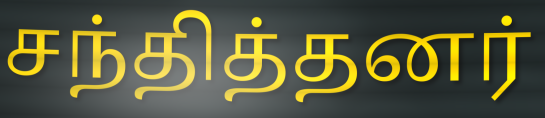
சந்தித்தனர்